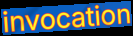
invocation